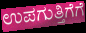
ಉಪಗುತ್ತಿಗೆಗೆ